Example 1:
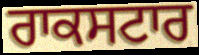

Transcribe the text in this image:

ਰਾਕਸਟਾਰ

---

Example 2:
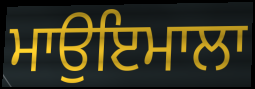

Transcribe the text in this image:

ਮਾਉਇਮਾਲਾ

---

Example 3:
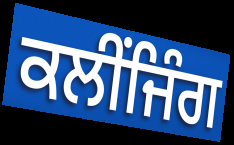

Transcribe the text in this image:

ਕਲੀਂਜਿੰਗ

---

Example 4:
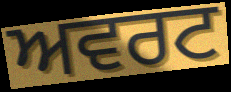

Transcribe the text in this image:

ਅਵਰਟ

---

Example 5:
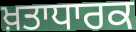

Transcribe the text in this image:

ਖ਼ਤਾਧਾਰਕ